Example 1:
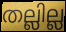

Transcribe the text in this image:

തല്ലില്ല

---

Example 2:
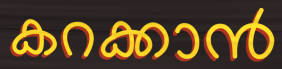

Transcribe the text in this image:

കറക്കാൻ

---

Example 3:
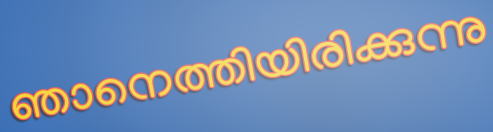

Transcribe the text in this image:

ഞാനെത്തിയിരിക്കുന്നു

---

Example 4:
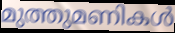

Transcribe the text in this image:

മുത്തുമണികൾ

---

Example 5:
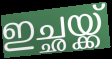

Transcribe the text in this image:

ഇച്ഛയ്ക്ക്